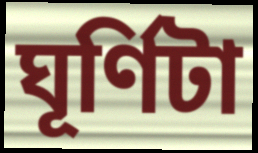
ঘূর্ণিটা